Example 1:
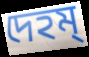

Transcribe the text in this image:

দেহম্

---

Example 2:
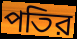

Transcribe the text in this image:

পতির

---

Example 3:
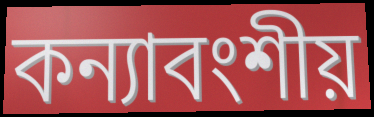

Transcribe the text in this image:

কন্যাবংশীয়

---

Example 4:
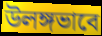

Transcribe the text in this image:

উলঙ্গভাবে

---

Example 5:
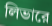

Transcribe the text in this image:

লিভারে